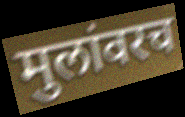
मुलांवरच